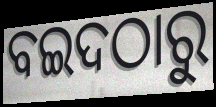
ବଇଦଠାରୁ